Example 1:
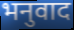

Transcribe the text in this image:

भनुवाद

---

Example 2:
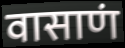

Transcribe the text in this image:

वासाणं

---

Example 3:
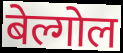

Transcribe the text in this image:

बेल्गोल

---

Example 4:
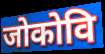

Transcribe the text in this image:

जोकोवि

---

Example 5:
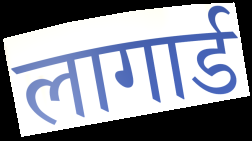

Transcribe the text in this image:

लागार्ड